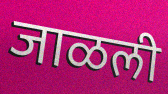
जाळली